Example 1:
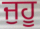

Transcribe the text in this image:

ਜੁਹੂ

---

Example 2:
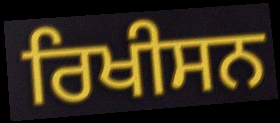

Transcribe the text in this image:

ਰਿਖੀਸਨ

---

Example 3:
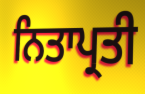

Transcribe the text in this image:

ਨਿਤਾਪ੍ਰਤੀ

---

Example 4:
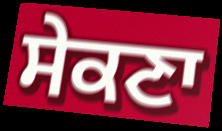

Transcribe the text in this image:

ਸੇਕਣਾ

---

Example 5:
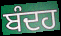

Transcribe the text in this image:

ਬੰਦਹ